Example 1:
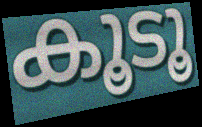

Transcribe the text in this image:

കൂടൂ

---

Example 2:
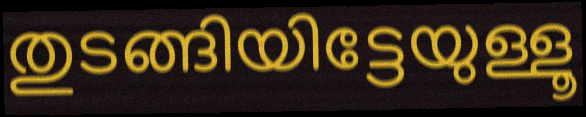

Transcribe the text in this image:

തുടങ്ങിയിട്ടേയുള്ളൂ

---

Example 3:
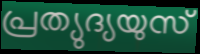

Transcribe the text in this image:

പ്രത്യുദ്യയുസ്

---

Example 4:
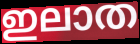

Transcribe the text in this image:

ഇലാത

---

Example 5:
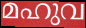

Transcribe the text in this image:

മഹുവ